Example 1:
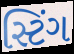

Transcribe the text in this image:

સ્ટિંગ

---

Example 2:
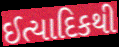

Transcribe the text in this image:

ઈત્યાદિકથી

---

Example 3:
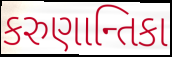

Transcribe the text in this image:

કરુણાન્તિકા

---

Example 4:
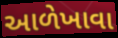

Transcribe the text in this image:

આળેખાવા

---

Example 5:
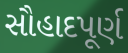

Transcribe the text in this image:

સૌહાદપૂર્ણ